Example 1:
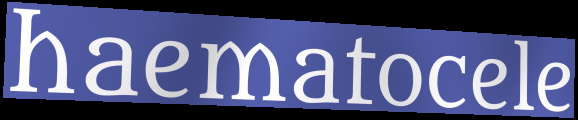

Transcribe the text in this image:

haematocele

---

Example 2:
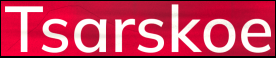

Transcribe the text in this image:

Tsarskoe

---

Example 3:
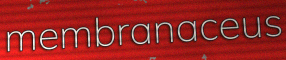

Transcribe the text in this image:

membranaceus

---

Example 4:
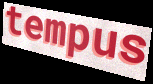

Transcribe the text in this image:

tempus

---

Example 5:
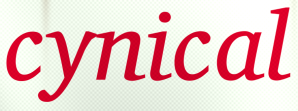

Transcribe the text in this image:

cynical